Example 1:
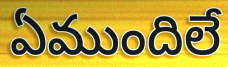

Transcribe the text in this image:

ఏముందిలే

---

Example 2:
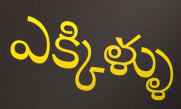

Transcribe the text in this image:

ఎక్కిళ్ళు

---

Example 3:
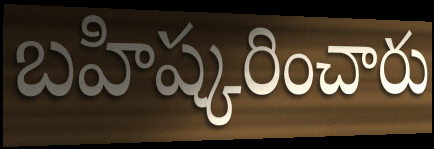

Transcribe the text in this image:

బహిష్కరించారు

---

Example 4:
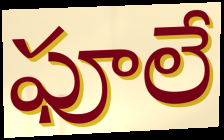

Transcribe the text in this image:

ఫూలే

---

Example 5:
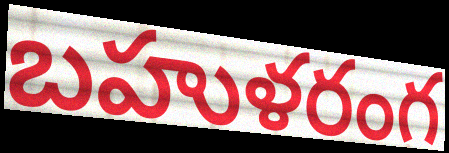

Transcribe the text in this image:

బహుళరంగ